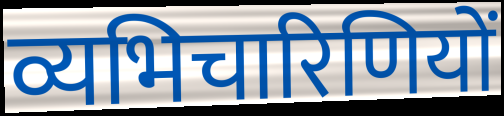
व्यभिचारिणियों